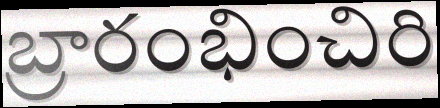
బ్రారంభించిరి